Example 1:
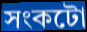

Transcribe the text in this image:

সংকটো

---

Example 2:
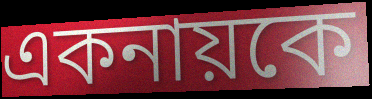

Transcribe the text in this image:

একনায়কে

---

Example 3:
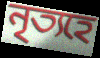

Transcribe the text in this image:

নৃত্যহে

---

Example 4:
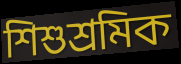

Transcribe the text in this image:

শিশুশ্ৰমিক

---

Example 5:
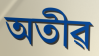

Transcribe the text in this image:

অতীৱ